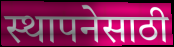
स्थापनेसाठी